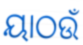
ୟାଠଉଁ